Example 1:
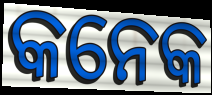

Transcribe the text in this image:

କନେକ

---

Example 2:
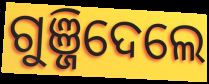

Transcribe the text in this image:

ଗୁଞ୍ଜିଦେଲେ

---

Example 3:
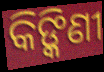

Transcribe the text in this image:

କିଙ୍କିଣୀ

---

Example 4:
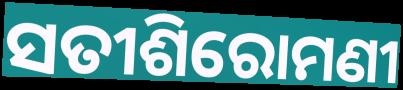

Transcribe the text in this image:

ସତୀଶିରୋମଣୀ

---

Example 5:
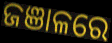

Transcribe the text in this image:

ଜଞାଳରେ